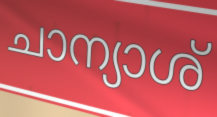
ചാന്യാശ്